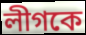
লীগকে